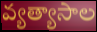
వ్యత్యాసాల